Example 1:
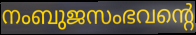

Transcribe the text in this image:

നംബുജസംഭവന്റെ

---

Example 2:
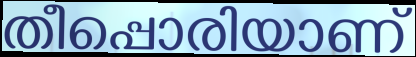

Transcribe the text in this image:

തീപ്പൊരിയാണ്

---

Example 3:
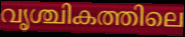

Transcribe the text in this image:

വൃശ്ചികത്തിലെ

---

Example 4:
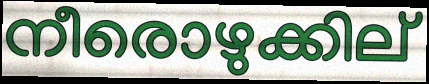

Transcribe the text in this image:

നീരൊഴുക്കില്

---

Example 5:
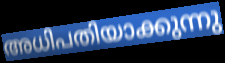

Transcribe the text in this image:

അധിപതിയാക്കുന്നു